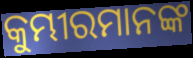
କୁମ୍ଭୀରମାନଙ୍କ